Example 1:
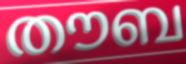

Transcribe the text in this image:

തൗബ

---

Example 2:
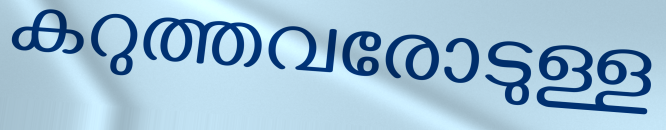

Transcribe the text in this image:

കറുത്തവരോടുള്ള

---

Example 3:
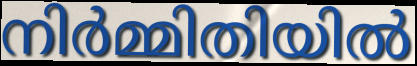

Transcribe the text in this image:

നിർമ്മിതിയിൽ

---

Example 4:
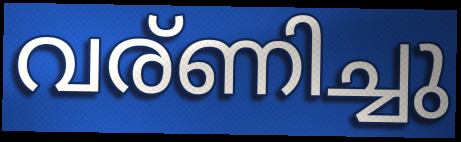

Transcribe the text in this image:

വര്ണിച്ചു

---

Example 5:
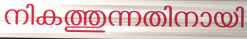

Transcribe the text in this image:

നികത്തുന്നതിനായി